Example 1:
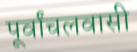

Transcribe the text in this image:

पूर्वांचलवासी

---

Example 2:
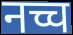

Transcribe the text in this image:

नच्च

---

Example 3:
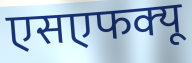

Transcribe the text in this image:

एसएफक्यू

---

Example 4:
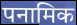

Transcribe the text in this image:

पनामिक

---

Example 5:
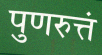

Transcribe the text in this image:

पुणरुत्तं